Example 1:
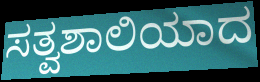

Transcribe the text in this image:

ಸತ್ವಶಾಲಿಯಾದ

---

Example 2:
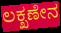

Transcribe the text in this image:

ಲಕ್ಖಣೇನ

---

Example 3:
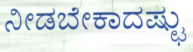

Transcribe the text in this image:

ನೀಡಬೇಕಾದಷ್ಟು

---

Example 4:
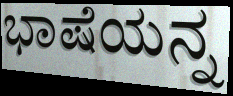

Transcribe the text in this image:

ಭಾಷೆಯನ್ನ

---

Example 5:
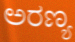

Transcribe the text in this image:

ಅರಣ್ಯ